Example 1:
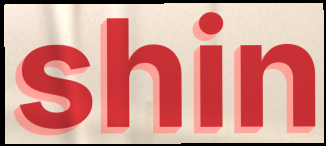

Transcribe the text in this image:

shin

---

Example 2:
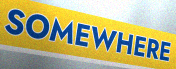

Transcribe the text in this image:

SOMEWHERE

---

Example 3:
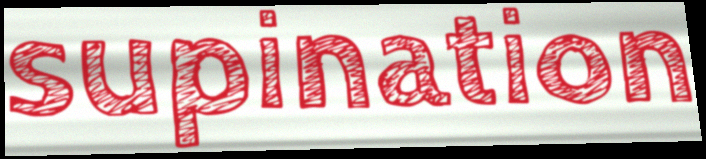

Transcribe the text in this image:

supination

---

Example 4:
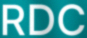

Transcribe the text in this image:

RDC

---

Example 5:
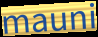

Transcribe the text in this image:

mauni